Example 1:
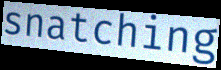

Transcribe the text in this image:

snatching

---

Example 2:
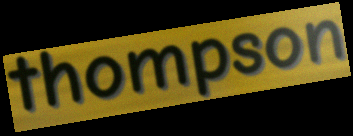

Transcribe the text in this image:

thompson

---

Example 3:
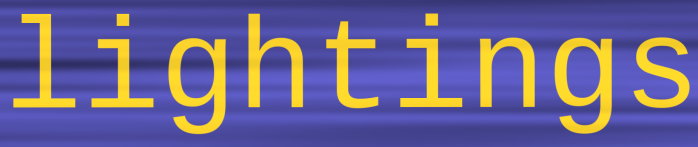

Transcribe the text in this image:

lightings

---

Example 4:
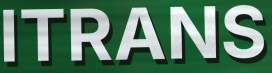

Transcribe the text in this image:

ITRANS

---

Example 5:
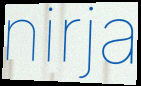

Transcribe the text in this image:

nirja